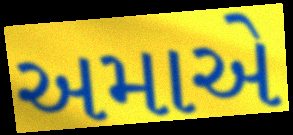
અમાએ